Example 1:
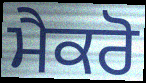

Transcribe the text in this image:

ਮੈਕਰੋ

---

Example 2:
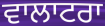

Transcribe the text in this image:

ਵਾਲਾਟਰਾ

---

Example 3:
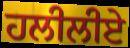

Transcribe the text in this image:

ਹਲੀਲੀਏ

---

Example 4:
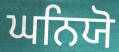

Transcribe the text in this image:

ਘਨਿਯੋ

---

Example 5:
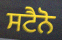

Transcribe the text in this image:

ਸਟੈਨੋ